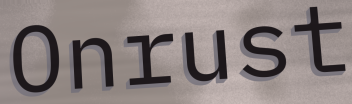
Onrust